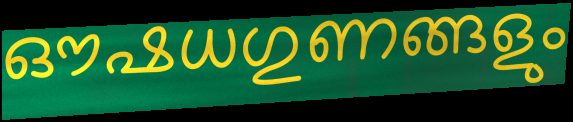
ഔഷധഗുണങ്ങളും